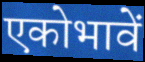
एकोभावें